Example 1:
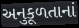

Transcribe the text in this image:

અનુકૂળતાનાં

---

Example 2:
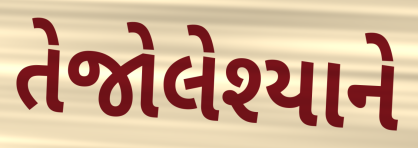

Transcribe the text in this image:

તેજોલેશ્યાને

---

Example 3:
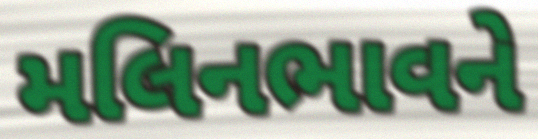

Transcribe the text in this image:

મલિનભાવને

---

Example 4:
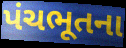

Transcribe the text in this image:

પંચભૂતના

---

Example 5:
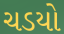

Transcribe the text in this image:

ચડયો